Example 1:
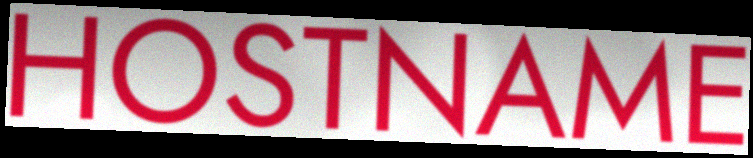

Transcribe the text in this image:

HOSTNAME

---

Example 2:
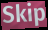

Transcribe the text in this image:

Skip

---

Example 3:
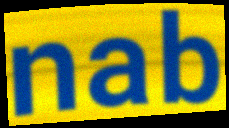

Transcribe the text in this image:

nab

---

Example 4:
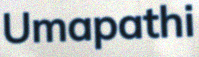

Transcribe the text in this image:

Umapathi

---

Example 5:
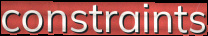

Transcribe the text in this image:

constraints